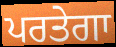
ਪਰਤੇਗਾ